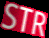
STR